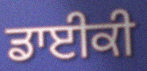
ਡਾਈਕੀ